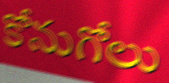
కోనుగోలు